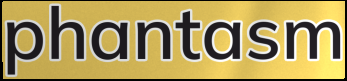
phantasm